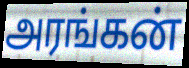
அரங்கன்